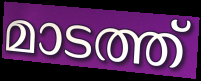
മാടത്ത്